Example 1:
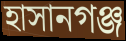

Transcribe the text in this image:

হাসানগঞ্জ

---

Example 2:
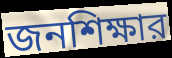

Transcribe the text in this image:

জনশিক্ষার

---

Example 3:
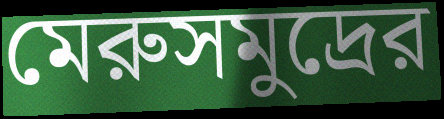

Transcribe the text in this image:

মেরুসমুদ্রের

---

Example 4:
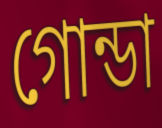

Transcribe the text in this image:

গোন্ডা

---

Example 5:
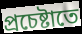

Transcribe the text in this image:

প্রচেষ্টাতে